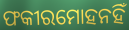
ଫକୀରମୋହନହିଁ